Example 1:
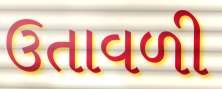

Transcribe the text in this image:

ઉતાવળી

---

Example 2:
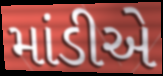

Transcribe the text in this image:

માંડીએ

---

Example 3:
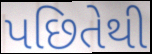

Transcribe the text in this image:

પછિતેથી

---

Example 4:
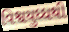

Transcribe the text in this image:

વિશ્વયુધ્ધથી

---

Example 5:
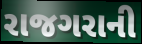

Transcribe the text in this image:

રાજગરાની